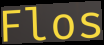
Flos